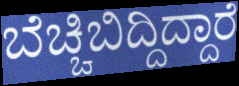
ಬೆಚ್ಚಿಬಿದ್ದಿದ್ದಾರೆ